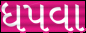
ધપવા